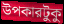
উপকারটুকু